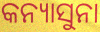
କନ୍ୟାସୁନା